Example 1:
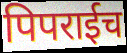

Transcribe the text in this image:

पिपराईच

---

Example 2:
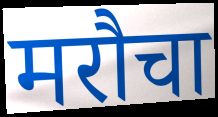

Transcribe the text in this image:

मरौचा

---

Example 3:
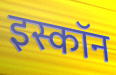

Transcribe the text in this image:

इस्‍कॉन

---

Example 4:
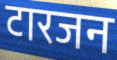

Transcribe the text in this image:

टारजन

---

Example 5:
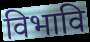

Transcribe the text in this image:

विभावि